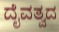
ದೈವತ್ವದ